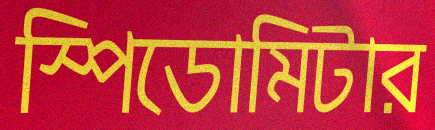
স্পিডোমিটার